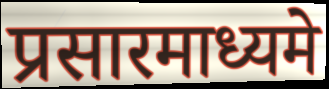
प्रसारमाध्यमे